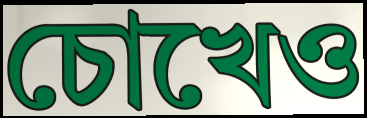
চোখেও